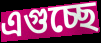
এগুচ্ছে